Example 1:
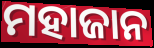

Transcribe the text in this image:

ମହାଜାନ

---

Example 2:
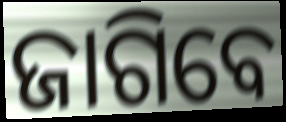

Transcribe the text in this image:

ଜାଗିବେ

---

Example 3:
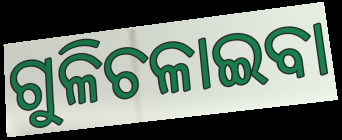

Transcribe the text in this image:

ଗୁଳିଚଳାଇବା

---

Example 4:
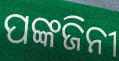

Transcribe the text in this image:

ପଙ୍କଜିନୀ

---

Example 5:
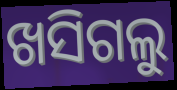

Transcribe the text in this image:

ଖସିଗଲୁ